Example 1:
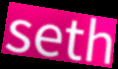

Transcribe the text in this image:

seth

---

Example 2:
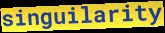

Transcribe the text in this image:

singuilarity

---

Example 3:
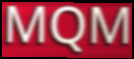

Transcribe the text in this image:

MQM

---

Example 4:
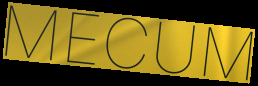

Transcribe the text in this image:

MECUM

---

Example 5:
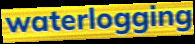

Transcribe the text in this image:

waterlogging